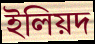
ইলিয়দ